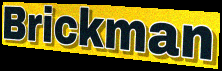
Brickman